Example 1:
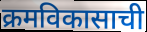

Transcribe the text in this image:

क्रमविकासाची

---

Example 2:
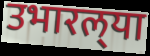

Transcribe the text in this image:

उभारल्या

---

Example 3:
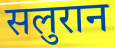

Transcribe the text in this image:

सलुरान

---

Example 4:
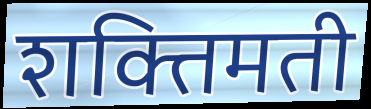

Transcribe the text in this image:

शक्तिमती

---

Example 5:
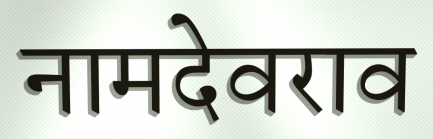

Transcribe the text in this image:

नामदेवराव